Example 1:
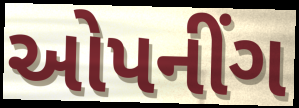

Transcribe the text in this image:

ઓપનીંગ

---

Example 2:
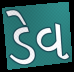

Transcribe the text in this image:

ડેવ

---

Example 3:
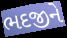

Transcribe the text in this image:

ભદજીને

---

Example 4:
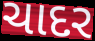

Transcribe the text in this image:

ચાદર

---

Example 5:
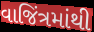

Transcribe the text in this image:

વાજિંત્રમાંથી